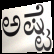
ಅಷ್ಟೆ